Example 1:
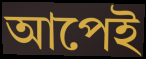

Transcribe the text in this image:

আপেই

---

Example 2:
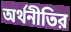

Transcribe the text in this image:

অর্থনীতির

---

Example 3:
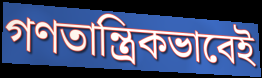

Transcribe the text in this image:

গণতান্ত্রিকভাবেই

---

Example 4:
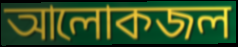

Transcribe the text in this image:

আলোকজল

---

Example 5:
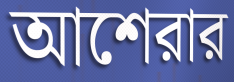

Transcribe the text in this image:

আশেরার